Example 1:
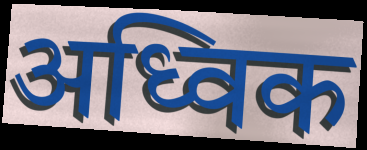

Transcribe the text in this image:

अध्विक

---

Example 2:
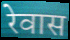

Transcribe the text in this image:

रेवास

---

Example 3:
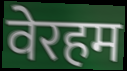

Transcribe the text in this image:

वेरहम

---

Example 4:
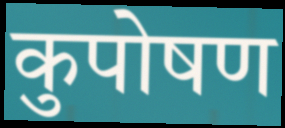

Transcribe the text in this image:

कुपोषण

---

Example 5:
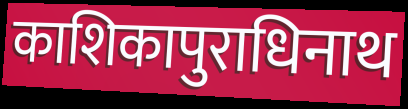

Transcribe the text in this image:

काशिकापुराधिनाथ